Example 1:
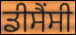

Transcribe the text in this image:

ਡੀਸੈਂਸੀ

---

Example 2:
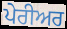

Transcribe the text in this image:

ਪੇਰੀਅਰ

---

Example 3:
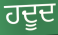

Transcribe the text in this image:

ਹਦੂਦ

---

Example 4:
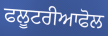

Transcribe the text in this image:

ਫਲੂਟਰੀਆਫੋਲ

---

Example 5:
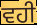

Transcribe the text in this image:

ਵਹੀ